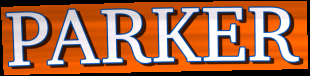
PARKER